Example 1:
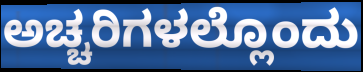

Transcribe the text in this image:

ಅಚ್ಚರಿಗಳಲ್ಲೊಂದು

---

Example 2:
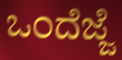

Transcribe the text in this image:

ಒಂದೆಜ್ಜೆ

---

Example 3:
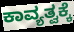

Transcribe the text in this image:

ಕಾವ್ಯತ್ವಕ್ಕೆ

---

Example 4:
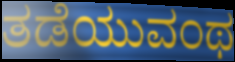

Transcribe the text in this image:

ತಡೆಯುವಂಥ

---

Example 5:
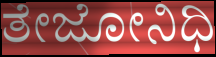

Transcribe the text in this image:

ತೇಜೋನಿಧಿ